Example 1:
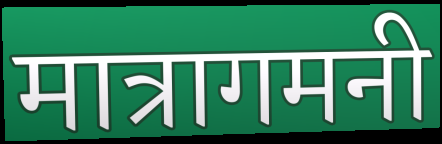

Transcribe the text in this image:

मात्रागमनी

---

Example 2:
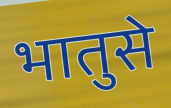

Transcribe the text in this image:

भातुसे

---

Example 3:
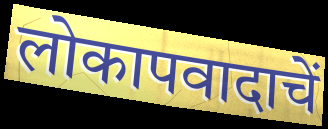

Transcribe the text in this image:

लोकापवादाचें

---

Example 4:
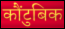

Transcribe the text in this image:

कौंटुबिक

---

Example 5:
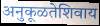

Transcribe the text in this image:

अनुकूळतेशिवाय